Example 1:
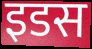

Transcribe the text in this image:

इडस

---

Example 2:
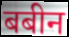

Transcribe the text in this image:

बबीन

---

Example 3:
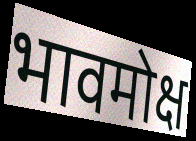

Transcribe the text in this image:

भावमोक्ष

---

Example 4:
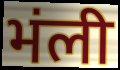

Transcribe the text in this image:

भंली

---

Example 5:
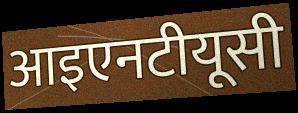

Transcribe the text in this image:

आइएनटीयूसी